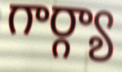
గార్గ్యా